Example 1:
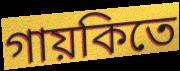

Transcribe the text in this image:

গায়কিতে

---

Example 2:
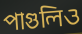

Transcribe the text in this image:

পাগুলিও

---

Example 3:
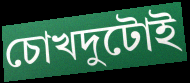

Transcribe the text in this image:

চোখদুটোই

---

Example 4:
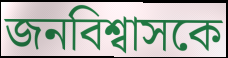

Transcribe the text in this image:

জনবিশ্বাসকে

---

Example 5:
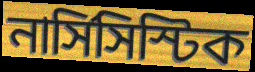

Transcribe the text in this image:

নার্সিসিস্টিক